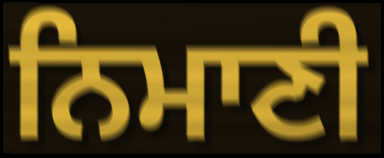
ਨਿਮਾਣੀ